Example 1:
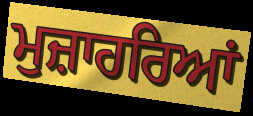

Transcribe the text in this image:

ਮੁਜ਼ਾਹਰਿਆਂ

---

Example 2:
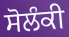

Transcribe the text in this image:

ਸੋਲੰਕੀ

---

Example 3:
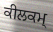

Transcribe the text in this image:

ਕੀਲਕਮ੍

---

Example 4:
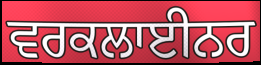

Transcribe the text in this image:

ਵਰਕਲਾਈਨਰ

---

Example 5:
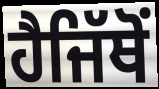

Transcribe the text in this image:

ਹੈਜਿੱਥੋਂ